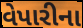
વેપારીના